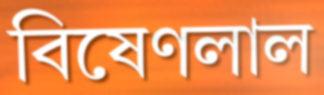
বিষেণলাল